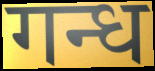
गन्‍ध